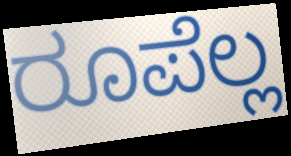
ರೂಪೆಲ್ಲ